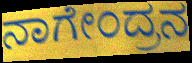
ನಾಗೇಂದ್ರನ